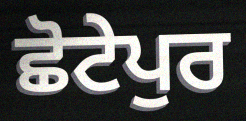
ਛੋਟੇਪੁਰ